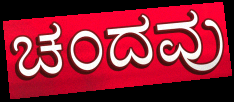
ಚಂದವು